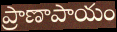
ప్రాణాపాయం